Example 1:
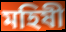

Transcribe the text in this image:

মহিষী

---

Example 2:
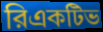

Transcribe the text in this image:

রিএকটিভ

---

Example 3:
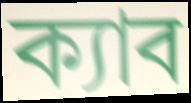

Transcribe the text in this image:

ক্যাব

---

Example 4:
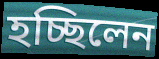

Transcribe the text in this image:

হচ্ছিলেন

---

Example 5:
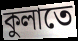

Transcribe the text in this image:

কুলাতে